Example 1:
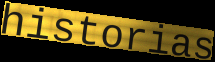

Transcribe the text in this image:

historias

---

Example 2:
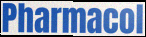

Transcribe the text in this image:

Pharmacol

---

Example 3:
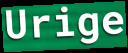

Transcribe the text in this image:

Urige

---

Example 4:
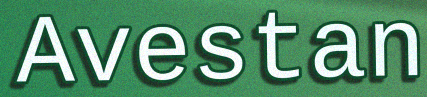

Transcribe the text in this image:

Avestan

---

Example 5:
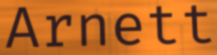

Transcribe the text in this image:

Arnett